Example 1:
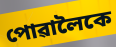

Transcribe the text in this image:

পোৱালৈকে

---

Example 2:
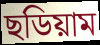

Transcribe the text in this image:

ছডিয়াম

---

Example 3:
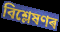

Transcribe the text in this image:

বিশ্লেষণৰ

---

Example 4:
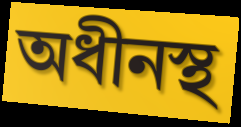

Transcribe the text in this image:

অধীনস্থ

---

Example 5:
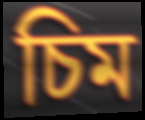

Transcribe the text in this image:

চিম